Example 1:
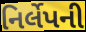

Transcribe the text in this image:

નિર્લેપની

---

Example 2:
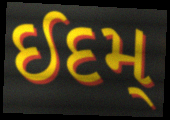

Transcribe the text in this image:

ઈદમ્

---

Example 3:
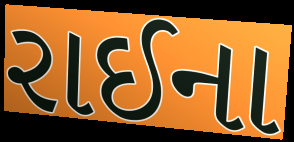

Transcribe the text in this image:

રાઈના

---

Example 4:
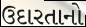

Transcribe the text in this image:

ઉદારતાનો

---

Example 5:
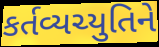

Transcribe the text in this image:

કર્તવ્યચ્યુતિને